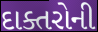
દાક્તરોની